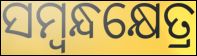
ସମ୍ବନ୍ଧକ୍ଷେତ୍ର